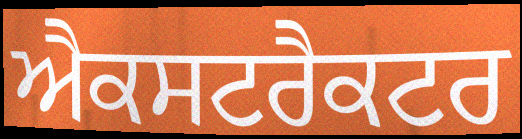
ਐਕਸਟਰੈਕਟਰ